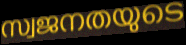
സ്വജനതയുടെ